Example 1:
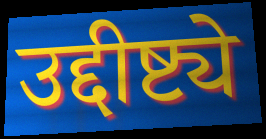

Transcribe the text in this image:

उद्दीष्ट्ये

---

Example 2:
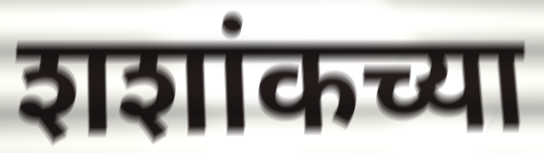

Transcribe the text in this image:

शशांकच्या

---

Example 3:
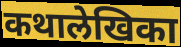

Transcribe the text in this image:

कथालेखिका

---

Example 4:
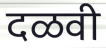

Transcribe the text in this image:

दळवी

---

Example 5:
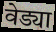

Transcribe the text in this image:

वेड्या